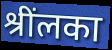
श्रींलका